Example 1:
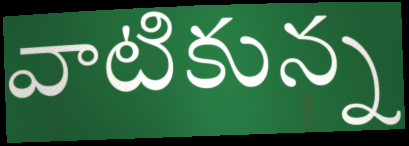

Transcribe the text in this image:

వాటికున్న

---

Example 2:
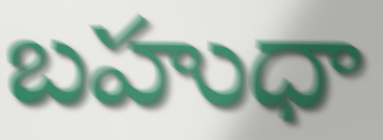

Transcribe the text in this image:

బహుధా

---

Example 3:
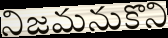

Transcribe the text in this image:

నిజమనుకొని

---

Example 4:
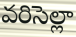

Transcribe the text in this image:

వరిసెల్లా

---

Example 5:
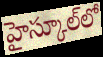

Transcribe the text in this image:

హైస్కూల్‌లో